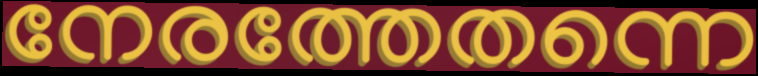
നേരത്തേതന്നെ